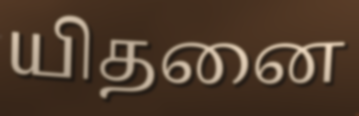
யிதனை